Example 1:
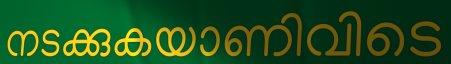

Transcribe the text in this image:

നടക്കുകയാണിവിടെ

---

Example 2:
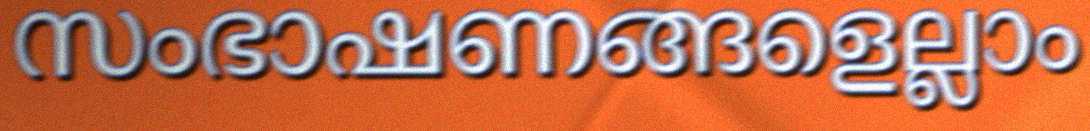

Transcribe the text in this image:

സംഭാഷണങ്ങളെല്ലാം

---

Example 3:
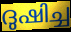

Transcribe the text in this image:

ദുഷിച്ച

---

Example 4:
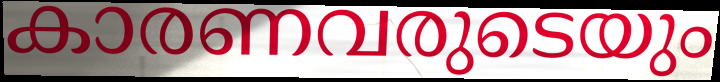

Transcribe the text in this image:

കാരണവരുടെയും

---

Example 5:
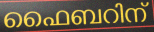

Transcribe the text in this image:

ഫൈബറിന്